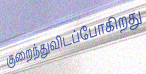
குறைந்துவிடப்போகிறது